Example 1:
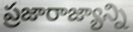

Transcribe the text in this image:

ప్రజారాజ్యాన్ని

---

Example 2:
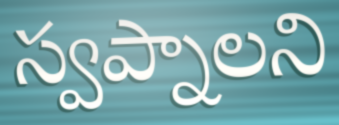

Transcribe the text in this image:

స్వప్నాలని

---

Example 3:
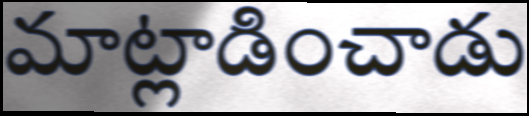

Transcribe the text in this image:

మాట్లాడించాడు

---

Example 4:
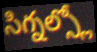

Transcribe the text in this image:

సిగ్నల్స్లో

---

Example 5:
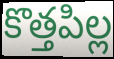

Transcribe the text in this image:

కొత్తపిల్ల